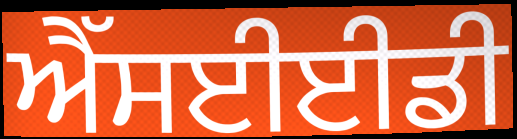
ਐੱਸਈਈਡੀ